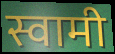
स्वामी